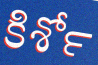
కిశోర్‍